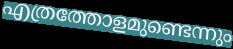
എത്രത്തോളമുണ്ടെന്നും